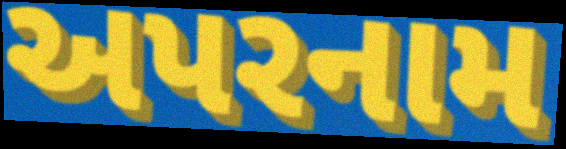
અપરનામ